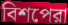
বিশপেরা